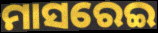
ମାସରେଇ